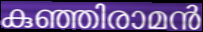
കുഞ്ഞിരാമൻ